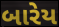
બારેય